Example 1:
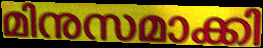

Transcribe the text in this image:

മിനുസമാക്കി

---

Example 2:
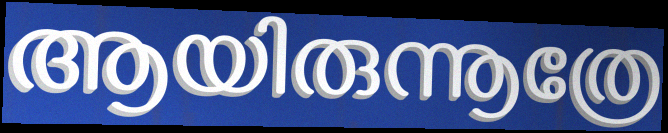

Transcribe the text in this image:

ആയിരുന്നൂത്രേ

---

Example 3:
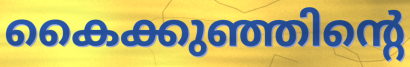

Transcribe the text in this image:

കൈക്കുഞ്ഞിന്റെ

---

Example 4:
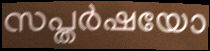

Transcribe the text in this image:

സപ്തർഷയോ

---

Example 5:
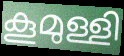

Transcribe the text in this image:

കൂമുള്ളി